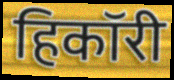
हिकॉरी